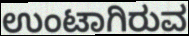
ಉಂಟಾಗಿರುವ